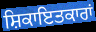
ਸ਼ਿਕਾਇਤਕਾਰਾਂ